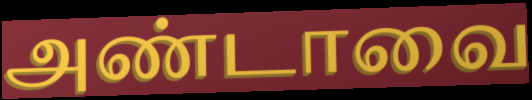
அண்டாவை